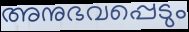
അനുഭവപ്പെടും